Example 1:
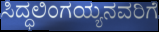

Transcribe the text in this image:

ಸಿದ್ಧಲಿಂಗಯ್ಯನವರಿಗೆ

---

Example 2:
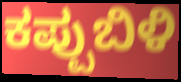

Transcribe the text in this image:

ಕಪ್ಪುಬಿಳಿ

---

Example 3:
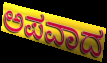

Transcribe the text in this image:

ಅಪವಾದ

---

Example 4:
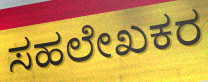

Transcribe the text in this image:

ಸಹಲೇಖಕರ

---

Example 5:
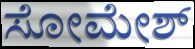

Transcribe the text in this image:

ಸೋಮೇಶ್